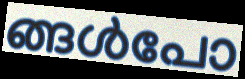
ങ്ങൾപോ